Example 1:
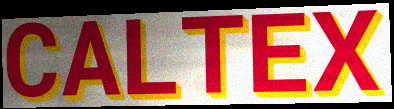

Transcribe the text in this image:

CALTEX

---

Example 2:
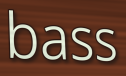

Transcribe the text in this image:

bass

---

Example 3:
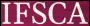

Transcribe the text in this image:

IFSCA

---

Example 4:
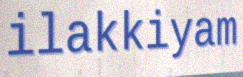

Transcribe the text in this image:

ilakkiyam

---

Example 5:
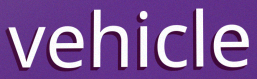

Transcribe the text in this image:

vehicle